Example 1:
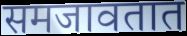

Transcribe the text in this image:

समजावतात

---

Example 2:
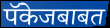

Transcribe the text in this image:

पॅकेजबाबत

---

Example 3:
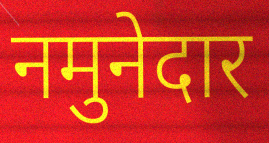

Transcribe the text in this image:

नमुनेदार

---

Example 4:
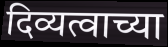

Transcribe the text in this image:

दिव्यत्वाच्या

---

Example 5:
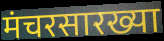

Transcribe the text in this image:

मंचरसारख्या